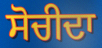
ਸੋਚੀਦਾ